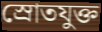
স্রোতযুক্ত